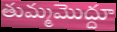
తుమ్మమొద్దూ